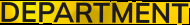
DEPARTMENT